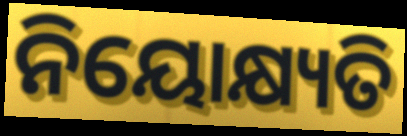
ନିୟୋକ୍ଷ୍ୟତି